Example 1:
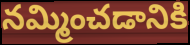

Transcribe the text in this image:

నమ్మించడానికి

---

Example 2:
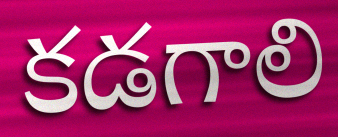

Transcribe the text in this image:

కడగాలి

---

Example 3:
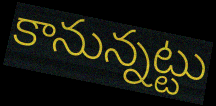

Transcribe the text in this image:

కానున్నట్టు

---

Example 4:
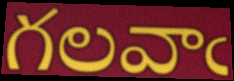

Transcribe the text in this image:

గలవాఁ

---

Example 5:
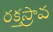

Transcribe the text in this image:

రక్తస్రావ